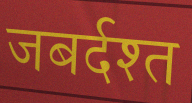
जबर्दश्त